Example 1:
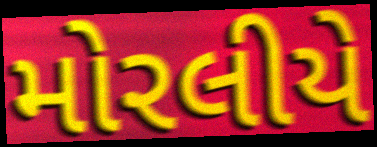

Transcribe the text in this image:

મોરલીયે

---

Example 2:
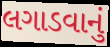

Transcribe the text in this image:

લગાડવાનું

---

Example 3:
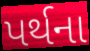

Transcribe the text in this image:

પર્થના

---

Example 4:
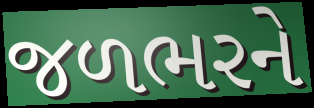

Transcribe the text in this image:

જળભરને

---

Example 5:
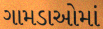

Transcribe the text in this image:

ગામડાઓમાં